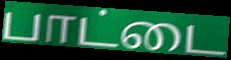
பாட்டை